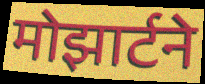
मोझार्टने